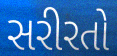
સરીરતો